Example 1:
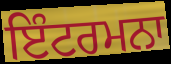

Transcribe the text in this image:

ਇੰਟਰਮਨਾ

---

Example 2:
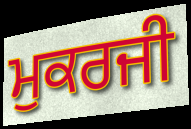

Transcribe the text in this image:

ਮੁਕਰਜੀ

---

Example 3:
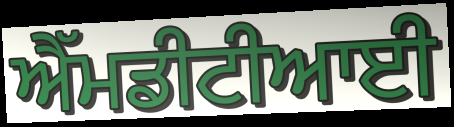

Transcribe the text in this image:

ਐੱਮਡੀਟੀਆਈ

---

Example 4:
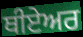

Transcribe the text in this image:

ਥੀਏਅਰ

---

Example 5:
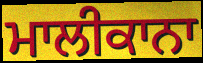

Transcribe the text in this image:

ਮਾਲੀਕਾਨਾ